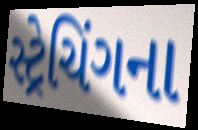
સ્ટ્રેચિંગના